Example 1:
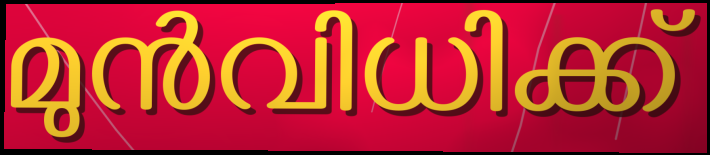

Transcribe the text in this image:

മുൻവിധിക്ക്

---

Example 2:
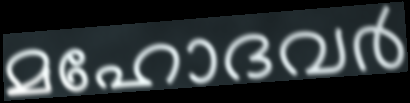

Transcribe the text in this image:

മഹോദവർ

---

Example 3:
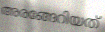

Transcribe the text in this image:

അരങ്ങേറിയത്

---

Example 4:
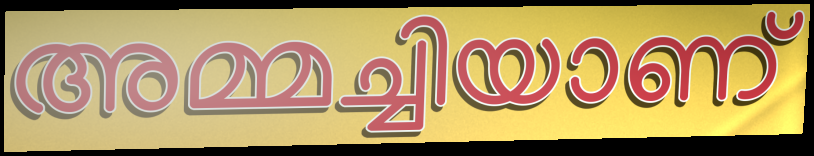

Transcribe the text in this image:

അമ്മച്ചിയാണ്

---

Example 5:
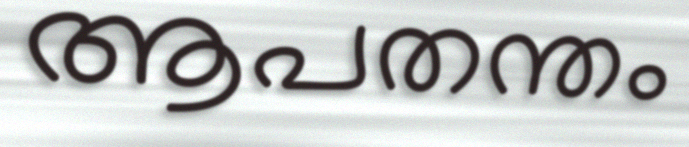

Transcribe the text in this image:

ആപതന്തം